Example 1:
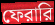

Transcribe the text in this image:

ফেরারি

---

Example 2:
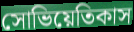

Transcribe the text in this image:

সোভিয়েতিকাস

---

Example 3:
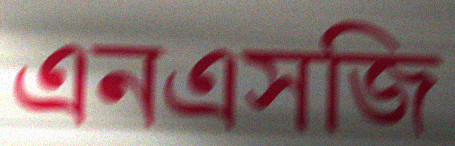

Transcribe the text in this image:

এনএসজি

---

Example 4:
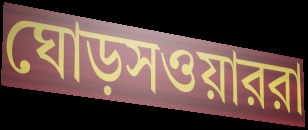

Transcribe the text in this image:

ঘোড়সওয়াররা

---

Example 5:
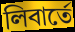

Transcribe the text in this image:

লিবার্তে